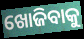
ଖୋଜିବାକୁ